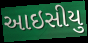
આઇસીયુ